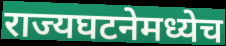
राज्यघटनेमध्येच